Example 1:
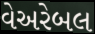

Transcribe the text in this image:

વેઅરેબલ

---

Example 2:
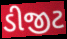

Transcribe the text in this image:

ડીજીટ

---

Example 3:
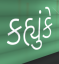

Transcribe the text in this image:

કહ્યુંકે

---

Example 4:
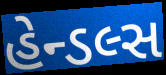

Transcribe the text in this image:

હેન્ડલ્સ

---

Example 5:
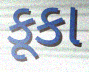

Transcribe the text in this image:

કૂકા